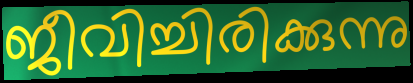
ജീവിച്ചിരിക്കുന്നു